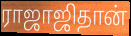
ராஜாஜிதான்